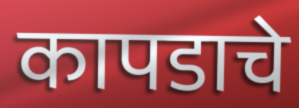
कापडाचे